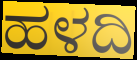
ಹಳದಿ